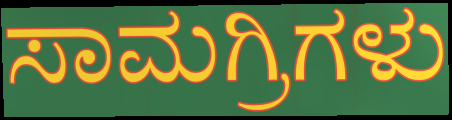
ಸಾಮಗ್ರಿಗಳು